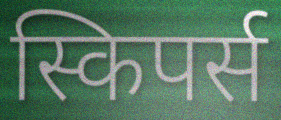
स्किपर्स